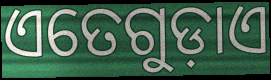
ଏତେଗୁଡ଼ାଏ